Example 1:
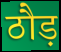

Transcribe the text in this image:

ठौड़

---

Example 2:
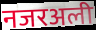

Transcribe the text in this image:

नजरअली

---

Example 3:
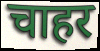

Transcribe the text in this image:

चाहर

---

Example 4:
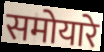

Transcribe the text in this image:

समोयारे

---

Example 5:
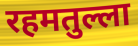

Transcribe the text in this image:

रहमतुल्ला